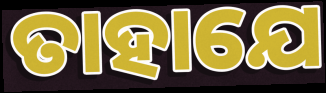
ତାହାଯେ